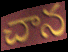
చాన